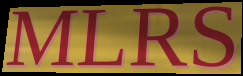
MLRS